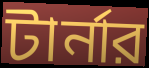
টার্নার